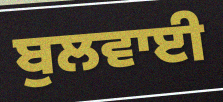
ਬੁਲਵਾਈ